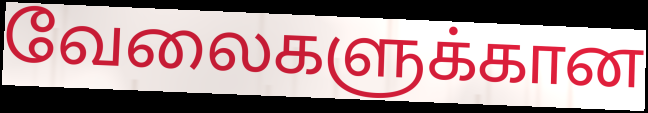
வேலைகளுக்கான